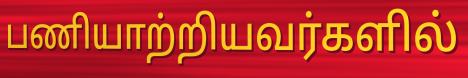
பணியாற்றியவர்களில்